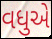
વધુએ